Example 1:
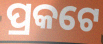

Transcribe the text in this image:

ପ୍ରକଟେ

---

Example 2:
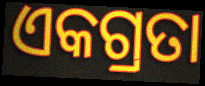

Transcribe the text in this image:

ଏକଗ୍ରତା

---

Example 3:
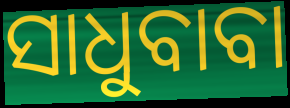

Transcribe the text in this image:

ସାଧୁବାବା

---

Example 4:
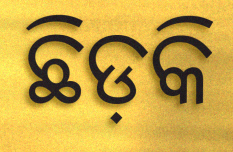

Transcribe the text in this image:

ଛିଡ଼କି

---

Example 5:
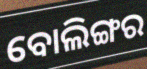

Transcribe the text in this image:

ବୋଲିଙ୍ଗର